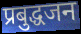
प्रबुद्धजन